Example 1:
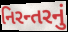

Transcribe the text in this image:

નિરન્તરનું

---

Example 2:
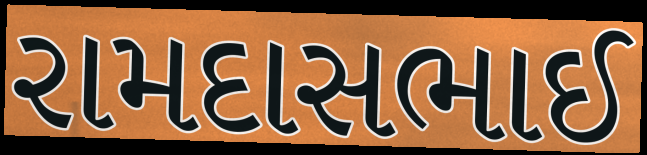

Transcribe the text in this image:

રામદાસભાઈ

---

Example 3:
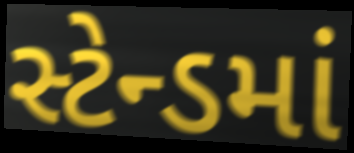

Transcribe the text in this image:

સ્ટેન્ડમાં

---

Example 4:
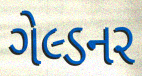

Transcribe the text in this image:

ગેલ્ડનર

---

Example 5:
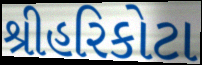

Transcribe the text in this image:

શ્રીહરિકોટા